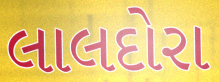
લાલદોરા